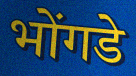
भोंगडे